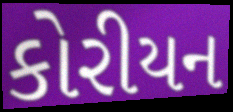
કોરીયન